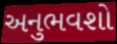
અનુભવશો